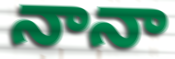
నానా